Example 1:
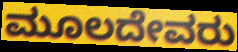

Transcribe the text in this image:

ಮೂಲದೇವರು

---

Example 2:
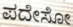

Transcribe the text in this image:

ಪದೇಸೋ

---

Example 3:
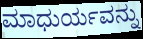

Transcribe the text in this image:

ಮಾಧುರ್ಯವನ್ನು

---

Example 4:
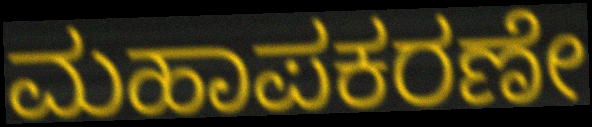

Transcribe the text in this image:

ಮಹಾಪಕರಣೇ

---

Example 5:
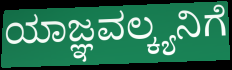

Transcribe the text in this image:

ಯಾಜ್ಞವಲ್ಕ್ಯನಿಗೆ